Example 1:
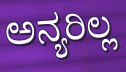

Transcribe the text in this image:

ಅನ್ಯರಿಲ್ಲ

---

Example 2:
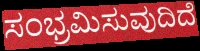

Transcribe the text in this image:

ಸಂಭ್ರಮಿಸುವುದಿದೆ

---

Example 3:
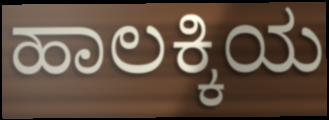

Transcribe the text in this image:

ಹಾಲಕ್ಕಿಯ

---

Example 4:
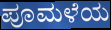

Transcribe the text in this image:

ಪೂಮಳೆಯ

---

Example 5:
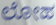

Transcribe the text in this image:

ಲೋಹ